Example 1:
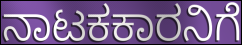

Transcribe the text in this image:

ನಾಟಕಕಾರನಿಗೆ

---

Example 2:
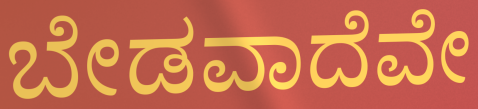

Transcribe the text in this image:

ಬೇಡವಾದೆವೇ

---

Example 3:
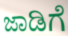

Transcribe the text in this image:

ಜಾಡಿಗೆ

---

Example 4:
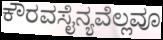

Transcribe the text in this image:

ಕೌರವಸೈನ್ಯವೆಲ್ಲವೂ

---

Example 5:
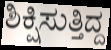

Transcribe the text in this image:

ಶಿಕ್ಷಿಸುತ್ತಿದ್ದ